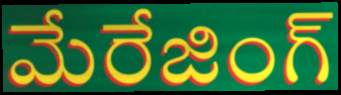
మేరేజింగ్